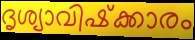
ദൃശ്യാവിഷ്‌ക്കാരം